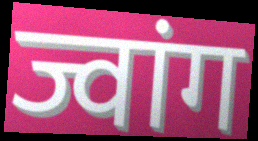
ज्वांग